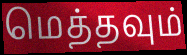
மெத்தவும்